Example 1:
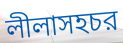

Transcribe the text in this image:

লীলাসহচর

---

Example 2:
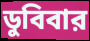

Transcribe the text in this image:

ডুবিবার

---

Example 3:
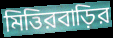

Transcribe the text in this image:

মিত্তিরবাড়ির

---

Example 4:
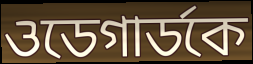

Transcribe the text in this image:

ওডেগার্ডকে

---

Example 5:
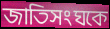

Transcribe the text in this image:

জাতিসংঘকে